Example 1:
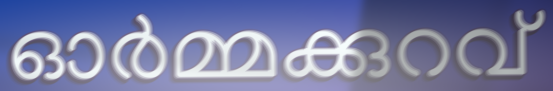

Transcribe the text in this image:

ഓർമ്മക്കുറവ്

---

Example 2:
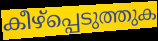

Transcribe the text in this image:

കീഴ്പ്പെടുത്തുക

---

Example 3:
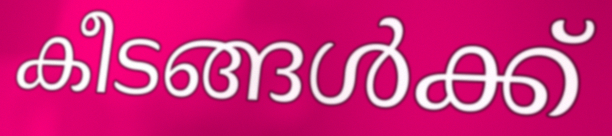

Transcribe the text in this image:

കീടങ്ങൾക്ക്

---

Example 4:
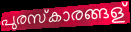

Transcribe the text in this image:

പുരസ്കാരങ്ങള്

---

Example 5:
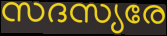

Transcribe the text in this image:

സദസ്യരേ